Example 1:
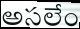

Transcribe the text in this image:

అసలేం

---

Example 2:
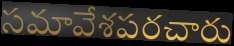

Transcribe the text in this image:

సమావేశపరచారు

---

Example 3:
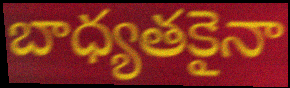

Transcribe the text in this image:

బాధ్యతకైనా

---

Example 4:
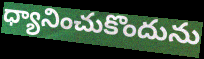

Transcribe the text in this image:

ధ్యానించుకొందును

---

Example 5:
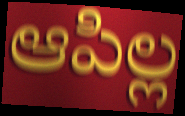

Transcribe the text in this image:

ఆపిల్ల